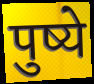
पुष्ये